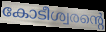
കോടീശ്വരന്റെ